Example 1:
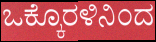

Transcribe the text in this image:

ಒಕ್ಕೊರಳಿನಿಂದ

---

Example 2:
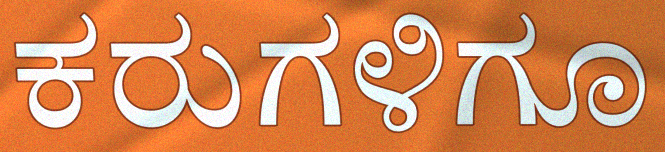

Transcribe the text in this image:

ಕರುಗಳಿಗೂ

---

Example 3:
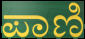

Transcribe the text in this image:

ಪಾಣಿ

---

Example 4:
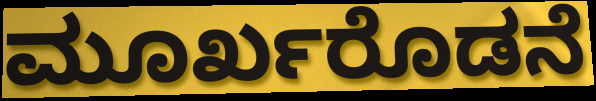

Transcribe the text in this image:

ಮೂರ್ಖರೊಡನೆ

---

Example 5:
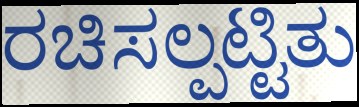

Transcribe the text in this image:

ರಚಿಸಲ್ಪಟ್ಟಿತು